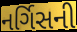
નર્ગિસની